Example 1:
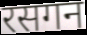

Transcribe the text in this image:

रसगन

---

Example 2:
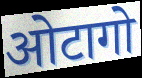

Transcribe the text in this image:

ओटागो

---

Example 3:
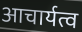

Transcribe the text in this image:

आचार्यत्व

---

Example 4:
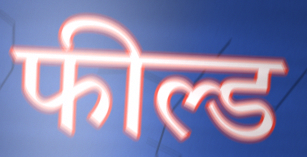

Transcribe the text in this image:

फील्‍ड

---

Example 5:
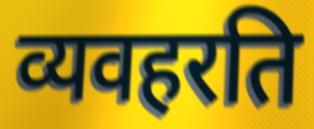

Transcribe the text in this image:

व्यवहरति